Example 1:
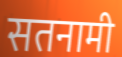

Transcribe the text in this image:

सतनामी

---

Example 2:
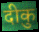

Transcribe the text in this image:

दीकु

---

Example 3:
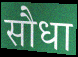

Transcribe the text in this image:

सौधा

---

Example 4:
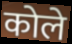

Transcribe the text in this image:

कोले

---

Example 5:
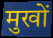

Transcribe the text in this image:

मुखों